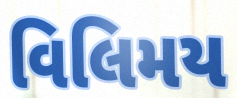
વિલિમય